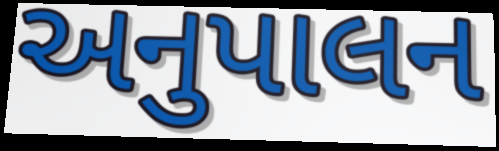
અનુપાલન